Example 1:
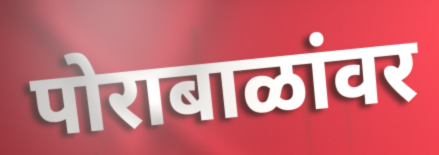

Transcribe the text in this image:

पोराबाळांवर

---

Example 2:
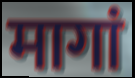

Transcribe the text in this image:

मागां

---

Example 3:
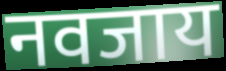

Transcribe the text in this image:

नवजाय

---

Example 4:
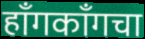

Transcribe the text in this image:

हॉंगकॉंगचा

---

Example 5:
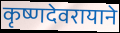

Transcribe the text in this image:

कृष्णदेवरायाने